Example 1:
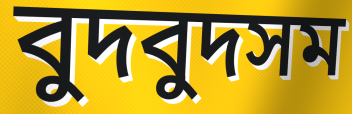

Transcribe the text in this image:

বুদবুদসম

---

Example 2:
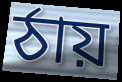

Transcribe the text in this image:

ঠায়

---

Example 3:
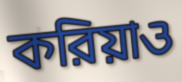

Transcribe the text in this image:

করিয়াও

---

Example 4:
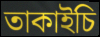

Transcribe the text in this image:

তাকাইচি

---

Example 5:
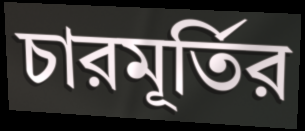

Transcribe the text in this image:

চারমূর্তির